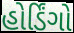
હોર્ડિંગો